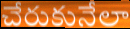
చేరుకునేలా